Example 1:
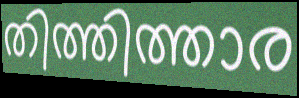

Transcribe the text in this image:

തിത്തിത്താര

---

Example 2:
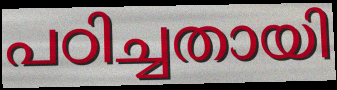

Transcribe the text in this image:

പഠിച്ചതായി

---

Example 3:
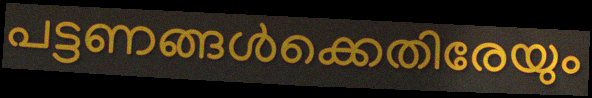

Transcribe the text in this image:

പട്ടണങ്ങൾക്കെതിരേയും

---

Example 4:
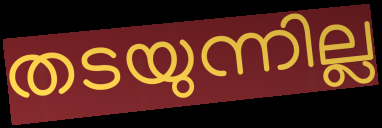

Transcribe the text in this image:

തടയുന്നില്ല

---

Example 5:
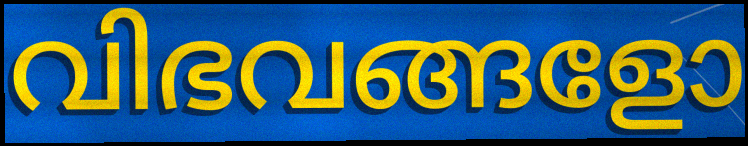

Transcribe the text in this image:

വിഭവങ്ങളോ